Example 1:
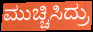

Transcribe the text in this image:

ಮುಚ್ಚಿಸಿದ್ರು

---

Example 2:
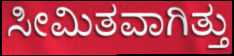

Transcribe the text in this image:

ಸೀಮಿತವಾಗಿತ್ತು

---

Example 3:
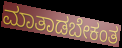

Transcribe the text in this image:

ಮಾತಾಡಬೇಕಂತ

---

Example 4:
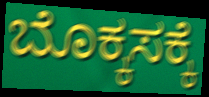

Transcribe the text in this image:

ಬೊಕ್ಕಸಕ್ಕೆ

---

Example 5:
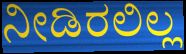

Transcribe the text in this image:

ನೀಡಿರಲಿಲ್ಲ